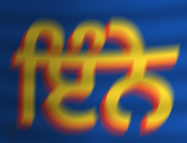
ਇੰਨੇ